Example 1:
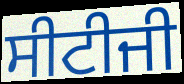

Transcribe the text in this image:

ਸੀਟੀਜੀ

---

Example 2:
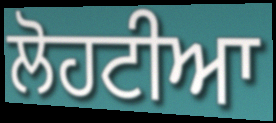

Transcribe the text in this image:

ਲੋਹਟੀਆ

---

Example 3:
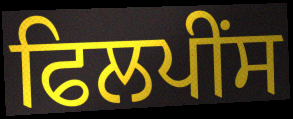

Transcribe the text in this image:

ਫਿਲਪੀਂਸ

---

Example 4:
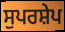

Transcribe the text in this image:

ਸੁਪਰਸ਼ੇਪ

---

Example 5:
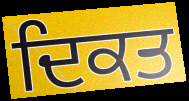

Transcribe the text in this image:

ਦਿਕਤ